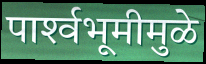
पार्श्‍वभूमीमुळे